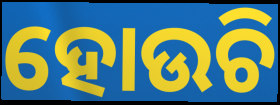
ହୋଉଚି